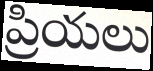
ప్రియలు